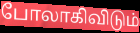
போலாகிவிடும்